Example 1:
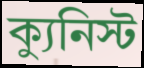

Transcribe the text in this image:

ক্যুনিস্ট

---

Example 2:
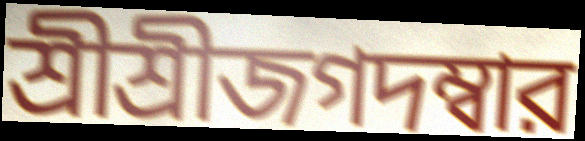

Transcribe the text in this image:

শ্রীশ্রীজগদম্বার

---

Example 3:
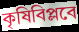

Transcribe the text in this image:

কৃষিবিপ্লবে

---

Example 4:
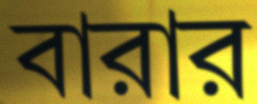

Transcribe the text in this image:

বারার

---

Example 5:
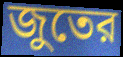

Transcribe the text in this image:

জুতের